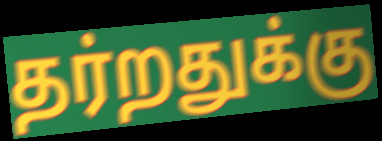
தர்றதுக்கு